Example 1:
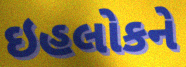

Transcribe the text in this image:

ઇહલોકને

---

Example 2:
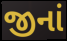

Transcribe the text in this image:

જીનાં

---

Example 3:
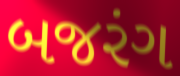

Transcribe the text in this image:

બજરંગ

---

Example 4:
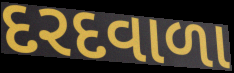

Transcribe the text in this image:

દરદવાળા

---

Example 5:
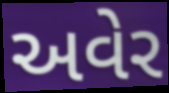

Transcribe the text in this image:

અવેર